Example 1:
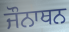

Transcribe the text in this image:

ਜੌਨਾਥਨ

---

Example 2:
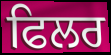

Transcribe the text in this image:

ਫਿਲਰ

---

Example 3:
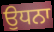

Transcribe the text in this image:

ਉਧਨਾ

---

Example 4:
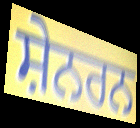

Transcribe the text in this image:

ਸ਼ੇਨਰਨ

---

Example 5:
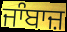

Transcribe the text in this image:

ਜਾੰਬਾਜ਼